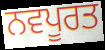
ਨਵਪੂਰਤ